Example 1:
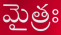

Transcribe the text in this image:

మైత్రః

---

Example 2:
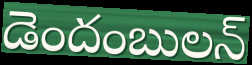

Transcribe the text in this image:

డెందంబులన్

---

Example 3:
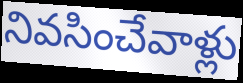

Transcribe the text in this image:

నివసించేవాళ్లు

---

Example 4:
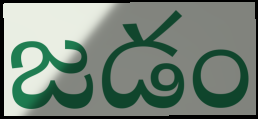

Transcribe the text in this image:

జడం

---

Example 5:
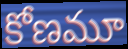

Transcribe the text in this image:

కోణమూ